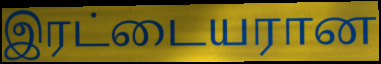
இரட்டையரான